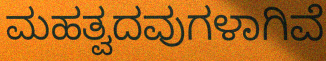
ಮಹತ್ವದವುಗಳಾಗಿವೆ